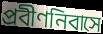
প্রবীণনিবাসে